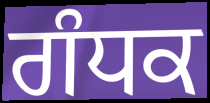
ਗੰਧਕ